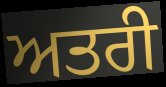
ਅਤਰੀ